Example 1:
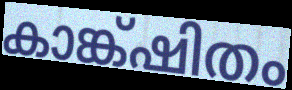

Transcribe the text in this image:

കാങ്ക്ഷിതം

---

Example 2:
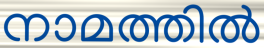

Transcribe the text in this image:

നാമത്തിൽ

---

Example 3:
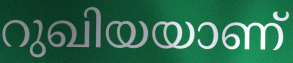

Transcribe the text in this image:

റുഖിയയാണ്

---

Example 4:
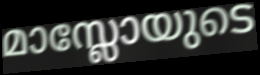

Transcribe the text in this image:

മാസ്ലോയുടെ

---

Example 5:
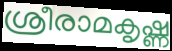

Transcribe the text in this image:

ശ്രീരാമകൃഷ്ണ